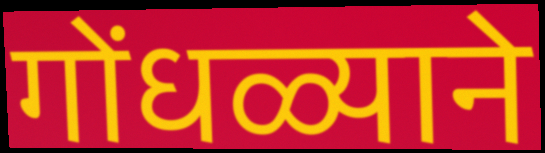
गोंधळ्याने